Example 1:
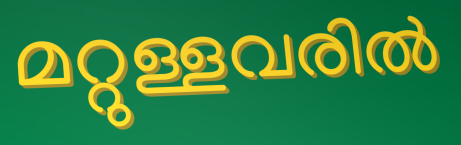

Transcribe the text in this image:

മറ്റുള്ളവരിൽ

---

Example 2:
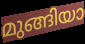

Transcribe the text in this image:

മുങ്ങിയാ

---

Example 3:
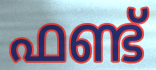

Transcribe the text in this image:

ഫണ്ട്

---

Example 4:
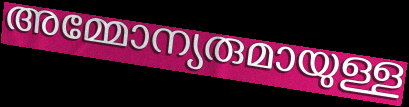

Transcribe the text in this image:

അമ്മോന്യരുമായുള്ള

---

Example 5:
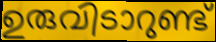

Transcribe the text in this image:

ഉരുവിടാറുണ്ട്